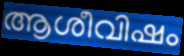
ആശീവിഷം